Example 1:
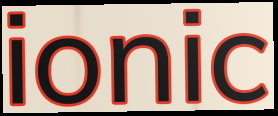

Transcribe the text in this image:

ionic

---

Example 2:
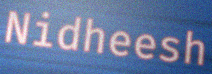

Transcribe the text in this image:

Nidheesh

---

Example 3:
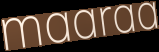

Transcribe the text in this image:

maaraa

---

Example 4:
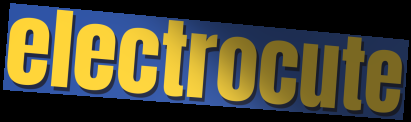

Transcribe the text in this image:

electrocute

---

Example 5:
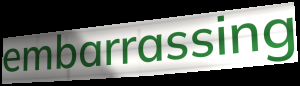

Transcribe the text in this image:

embarrassing